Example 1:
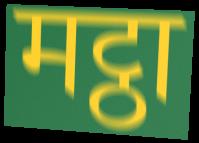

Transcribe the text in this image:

मट्ठा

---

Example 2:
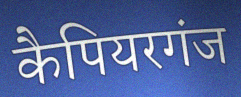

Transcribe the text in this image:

कैपियरगंज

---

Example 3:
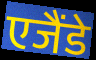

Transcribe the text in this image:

एजैंडे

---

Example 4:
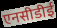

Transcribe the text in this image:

एनसीडीई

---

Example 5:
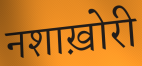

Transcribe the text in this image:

नशाख़ोरी